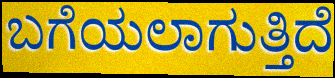
ಬಗೆಯಲಾಗುತ್ತಿದೆ